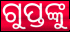
ଗୁପ୍ତଙ୍କୁ